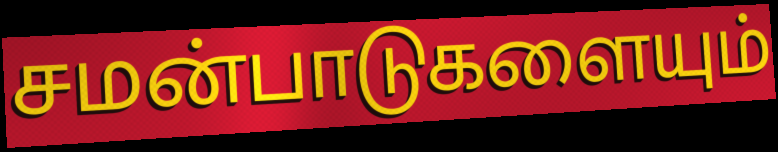
சமன்பாடுகளையும்